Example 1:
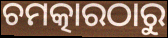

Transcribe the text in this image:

ଚମତ୍କାରଠାରୁ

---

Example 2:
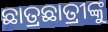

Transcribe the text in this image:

ଛାତ୍ରଛାତ୍ରୀଙ୍କୁ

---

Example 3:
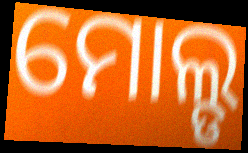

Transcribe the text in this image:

ମୋଲ୍ଡ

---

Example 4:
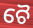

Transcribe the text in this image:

ଚୈ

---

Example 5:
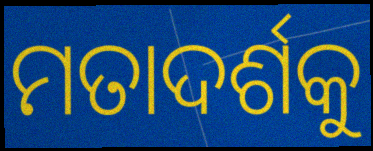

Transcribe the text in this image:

ମତାଦର୍ଶକୁ